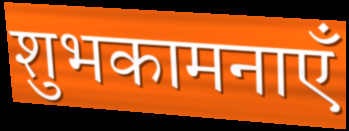
शुभकामनाएँ